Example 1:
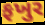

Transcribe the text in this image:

ફખુર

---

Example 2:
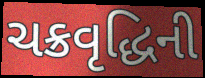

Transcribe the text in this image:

ચક્રવૃદ્ધિની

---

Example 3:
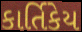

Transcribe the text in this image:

કાર્તિકેય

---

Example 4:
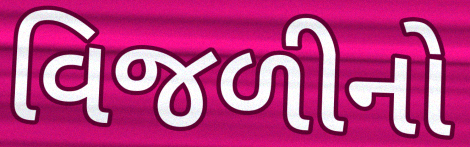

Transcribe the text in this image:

વિજળીનો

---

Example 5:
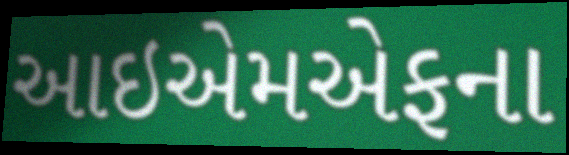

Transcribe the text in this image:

આઇએમએફના